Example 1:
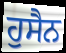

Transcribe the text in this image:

ਹੁਸੈਨ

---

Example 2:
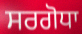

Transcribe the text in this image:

ਸਰਗੋਧਾ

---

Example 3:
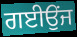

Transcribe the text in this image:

ਗਈਉਂਜ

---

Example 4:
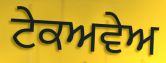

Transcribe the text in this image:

ਟੇਕਅਵੇਅ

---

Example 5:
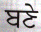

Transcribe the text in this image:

ਬਣੇ